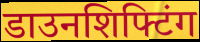
डाउनशिफ्टिंग